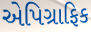
એપિગ્રાફિક